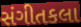
સંગીતકલા